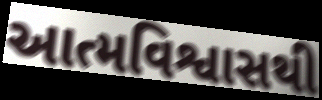
આત્મવિશ્વાસથી